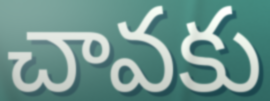
చావకు